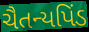
ચૈતન્યપિંડ